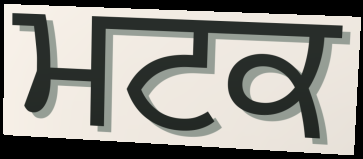
ਮਟਕ